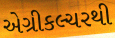
એગ્રીકલ્ચરથી